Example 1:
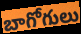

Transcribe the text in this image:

బాగోగులు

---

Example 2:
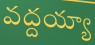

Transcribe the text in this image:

వద్దయ్యా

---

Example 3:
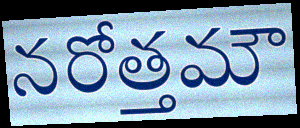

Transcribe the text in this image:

నరోత్తమౌ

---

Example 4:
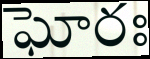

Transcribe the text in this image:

ఘోరః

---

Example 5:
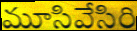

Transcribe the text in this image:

మూసివేసిరి